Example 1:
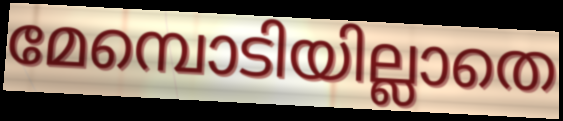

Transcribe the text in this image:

മേമ്പൊടിയില്ലാതെ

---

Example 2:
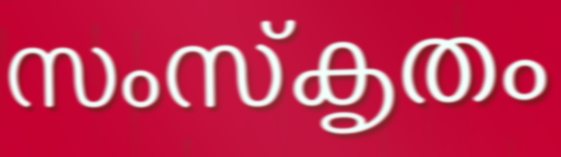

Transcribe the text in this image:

സംസ്‌കൃതം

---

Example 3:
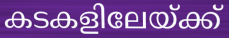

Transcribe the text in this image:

കടകളിലേയ്ക്ക്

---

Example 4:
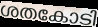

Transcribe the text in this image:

ശതകോടി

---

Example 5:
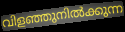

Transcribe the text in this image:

വിളഞ്ഞുനിൽക്കുന്ന